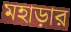
মহাড়ার